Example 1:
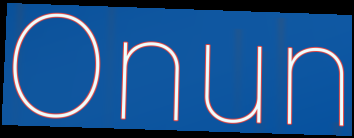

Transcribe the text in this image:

Onun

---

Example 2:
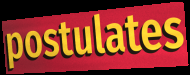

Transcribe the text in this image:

postulates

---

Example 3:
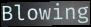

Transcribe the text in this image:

Blowing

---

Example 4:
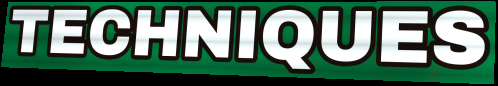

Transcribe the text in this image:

TECHNIQUES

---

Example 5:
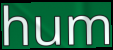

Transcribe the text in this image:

hum